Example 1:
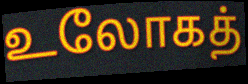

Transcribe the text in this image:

உலோகத்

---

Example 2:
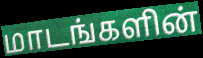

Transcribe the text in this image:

மாடங்களின்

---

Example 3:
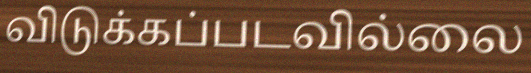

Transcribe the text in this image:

விடுக்கப்படவில்லை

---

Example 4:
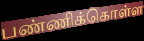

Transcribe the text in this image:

பண்ணிக்கொள்ள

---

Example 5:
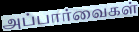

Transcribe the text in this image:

அப்பார்வைகள்